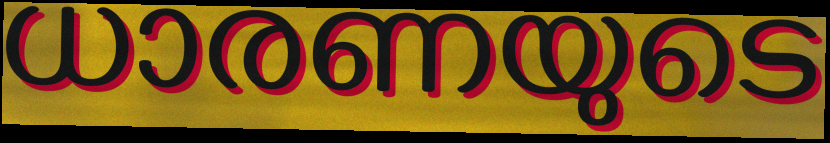
ധാരണയുടെ